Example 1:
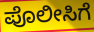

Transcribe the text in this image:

ಪೊಲೀಸಿಗೆ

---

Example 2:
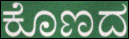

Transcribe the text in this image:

ಕೊಣದ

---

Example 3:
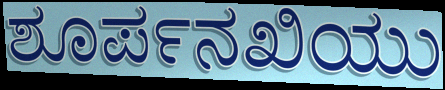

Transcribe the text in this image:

ಶೂರ್ಪನಖಿಯು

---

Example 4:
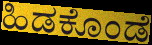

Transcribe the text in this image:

ಹಿಡಕೊಂಡೆ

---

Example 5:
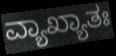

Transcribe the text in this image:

ವ್ಯಾಖ್ಯಾತಃ